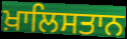
ਖ਼ਾਲਿਸਤਾਨ